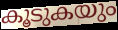
കൂടുകയും